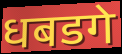
धबडगे